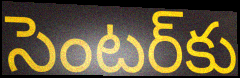
సెంటర్‌కు